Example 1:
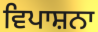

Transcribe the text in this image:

ਵਿਪਾਸ਼ਨਾ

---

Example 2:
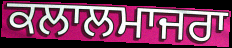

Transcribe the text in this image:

ਕਲਾਲਮਾਜਰਾ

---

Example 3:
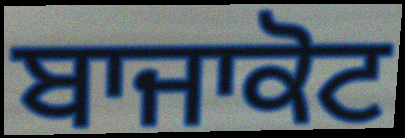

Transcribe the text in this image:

ਬਾਜਾਕੋਟ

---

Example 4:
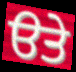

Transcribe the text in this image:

ੳਤੇ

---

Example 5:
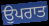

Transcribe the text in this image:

ਉਪਰਾਤ